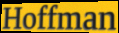
Hoffman